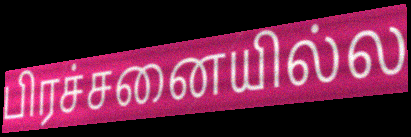
பிரச்சனையில்ல